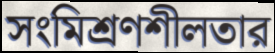
সংমিশ্রণশীলতার